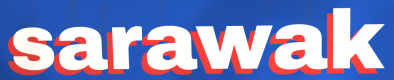
sarawak